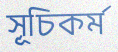
সূচিকর্ম